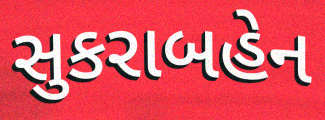
સુકરાબહેન